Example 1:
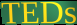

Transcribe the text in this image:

TEDs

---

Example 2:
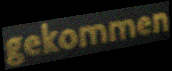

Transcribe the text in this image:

gekommen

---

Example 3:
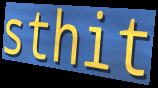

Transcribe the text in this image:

sthit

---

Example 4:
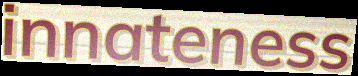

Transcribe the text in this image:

innateness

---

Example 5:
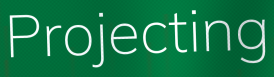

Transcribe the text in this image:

Projecting